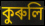
কুৰুলি